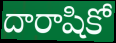
దారాషికో